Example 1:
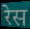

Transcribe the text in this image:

रेस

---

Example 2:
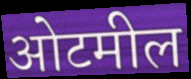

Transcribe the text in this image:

ओटमील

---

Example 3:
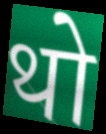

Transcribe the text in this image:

थो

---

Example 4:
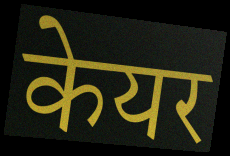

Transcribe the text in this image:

केयर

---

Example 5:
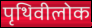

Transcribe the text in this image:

पृथिवीलोक